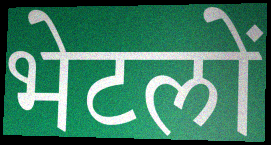
भेटलों